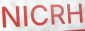
NICRH